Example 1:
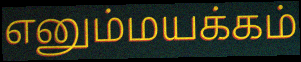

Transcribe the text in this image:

எனும்மயக்கம்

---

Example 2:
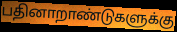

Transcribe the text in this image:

பதினாறாண்டுகளுக்கு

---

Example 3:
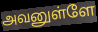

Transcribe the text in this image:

அவனுள்ளே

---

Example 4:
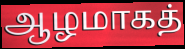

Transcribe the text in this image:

ஆழமாகத்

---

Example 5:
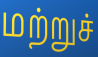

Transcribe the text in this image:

மற்றுச்